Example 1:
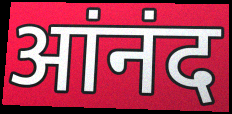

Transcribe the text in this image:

आंनंद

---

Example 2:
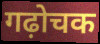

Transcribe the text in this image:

गढ़ोचक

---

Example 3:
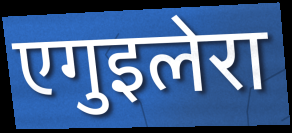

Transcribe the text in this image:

एगुइलेरा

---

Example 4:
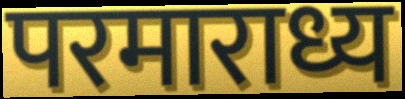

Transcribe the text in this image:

परमाराध्य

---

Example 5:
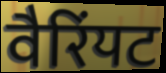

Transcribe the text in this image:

वैरिंयट